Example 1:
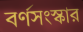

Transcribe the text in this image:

বর্ণসংস্কার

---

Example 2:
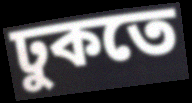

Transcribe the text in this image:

ঢুকতে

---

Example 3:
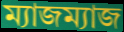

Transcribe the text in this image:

ম্যাজম্যাজ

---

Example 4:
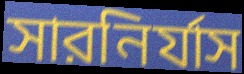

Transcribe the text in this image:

সারনির্যাস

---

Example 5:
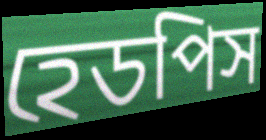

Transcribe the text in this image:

হেডপিস